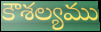
కౌశల్యము